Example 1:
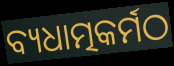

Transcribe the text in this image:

ବ୍ୟଧାତ୍ମକର୍ମଠ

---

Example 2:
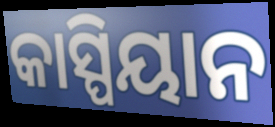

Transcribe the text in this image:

କାସ୍ପିୟାନ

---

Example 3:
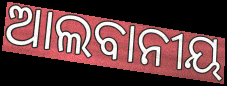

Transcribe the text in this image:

ଆଲବାନୀୟ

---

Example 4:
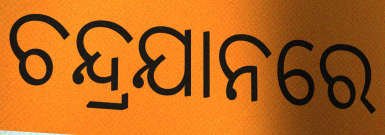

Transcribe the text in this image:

ଚନ୍ଦ୍ରଯାନରେ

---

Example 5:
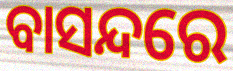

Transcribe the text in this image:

ବାସନ୍ଦରେ